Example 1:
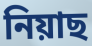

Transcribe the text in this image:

নিয়াছ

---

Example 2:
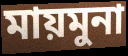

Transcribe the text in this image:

মায়মুনা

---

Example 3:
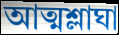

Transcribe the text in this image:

আত্মশ্লাঘা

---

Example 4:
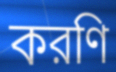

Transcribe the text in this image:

করণি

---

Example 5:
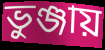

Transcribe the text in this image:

ভুঞ্জায়